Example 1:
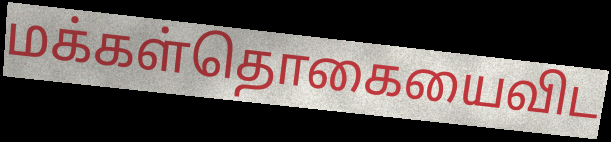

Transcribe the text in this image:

மக்கள்தொகையைவிட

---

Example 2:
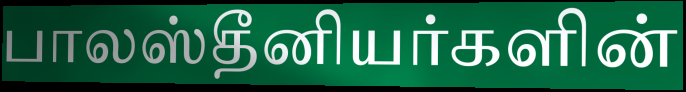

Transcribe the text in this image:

பாலஸ்தீனியர்களின்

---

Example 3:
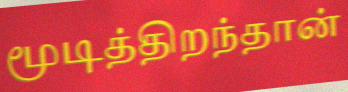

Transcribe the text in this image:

மூடித்திறந்தான்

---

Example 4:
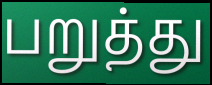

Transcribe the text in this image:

பறுத்து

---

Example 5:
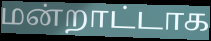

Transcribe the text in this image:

மன்றாட்டாக